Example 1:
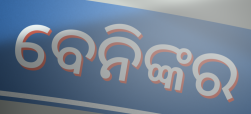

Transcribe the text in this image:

ବେନିଙ୍କର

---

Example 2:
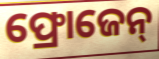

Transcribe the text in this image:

ଫ୍ରୋଜେନ୍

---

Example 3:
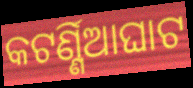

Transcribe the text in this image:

କଟର୍ଣ୍ଣିଆଘାଟ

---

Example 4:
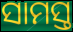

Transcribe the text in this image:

ସାମସ୍ତ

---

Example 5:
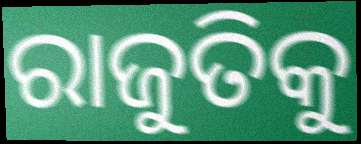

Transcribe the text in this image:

ରାଜୁତିକୁ